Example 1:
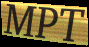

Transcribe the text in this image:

MPT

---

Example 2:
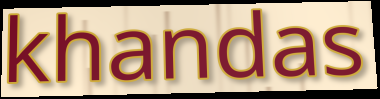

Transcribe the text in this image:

khandas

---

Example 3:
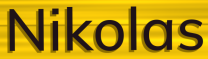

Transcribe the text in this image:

Nikolas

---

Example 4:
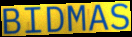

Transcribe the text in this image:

BIDMAS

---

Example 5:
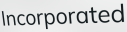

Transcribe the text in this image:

Incorporated